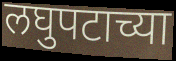
लघुपटाच्या